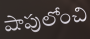
షాపులోంచి